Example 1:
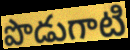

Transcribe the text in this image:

పొడుగాటి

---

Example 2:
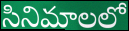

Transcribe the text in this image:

సినిమాలలో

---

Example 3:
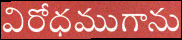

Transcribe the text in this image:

విరోధముగాను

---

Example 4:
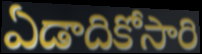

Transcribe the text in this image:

ఏడాదికోసారి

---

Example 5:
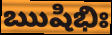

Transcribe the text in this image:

ఋషిభిః